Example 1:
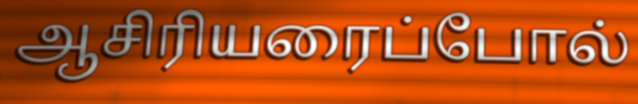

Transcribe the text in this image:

ஆசிரியரைப்போல்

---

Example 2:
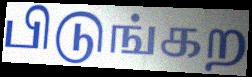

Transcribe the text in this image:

பிடுங்கற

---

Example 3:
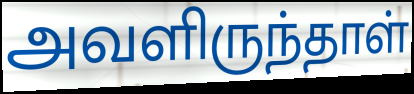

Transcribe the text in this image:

அவளிருந்தாள்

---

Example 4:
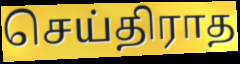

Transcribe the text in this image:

செய்திராத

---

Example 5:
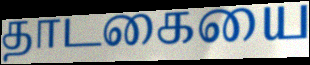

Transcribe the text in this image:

தாடகையை